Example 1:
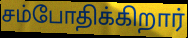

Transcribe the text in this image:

சம்போதிக்கிறார்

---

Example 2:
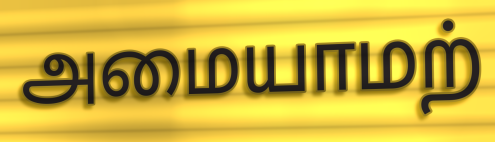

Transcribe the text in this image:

அமையாமற்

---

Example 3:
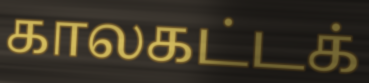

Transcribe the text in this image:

காலகட்டக்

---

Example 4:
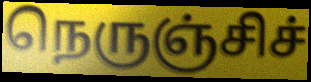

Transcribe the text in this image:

நெருஞ்சிச்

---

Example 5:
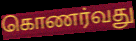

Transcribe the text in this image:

கொணர்வது